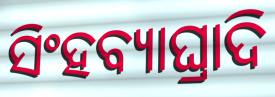
ସିଂହବ୍ୟାଘ୍ରାଦି